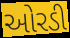
ઓરડી